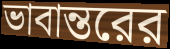
ভাবান্তরের